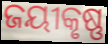
ଜୟୀକୃଷ୍ଣ